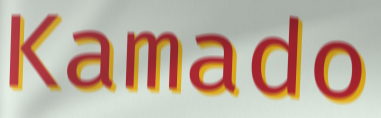
Kamado